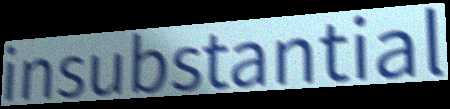
insubstantial